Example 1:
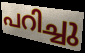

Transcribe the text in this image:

പറിച്ചു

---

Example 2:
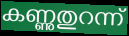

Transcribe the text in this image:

കണ്ണുതുറന്ന്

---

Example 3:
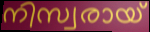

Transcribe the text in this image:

നിസ്വരായ്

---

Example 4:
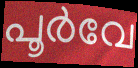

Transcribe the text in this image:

പൂർവേ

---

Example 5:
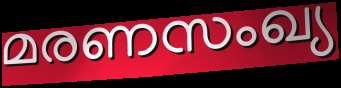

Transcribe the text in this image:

മരണസംഖ്യ